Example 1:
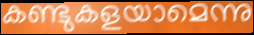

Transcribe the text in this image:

കണ്ടുകളയാമെന്നു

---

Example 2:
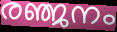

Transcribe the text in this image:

രഞ്ജനം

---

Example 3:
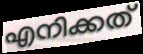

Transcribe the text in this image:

എനിക്കത്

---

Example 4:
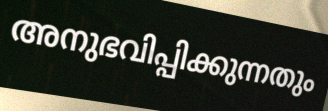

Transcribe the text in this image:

അനുഭവിപ്പിക്കുന്നതും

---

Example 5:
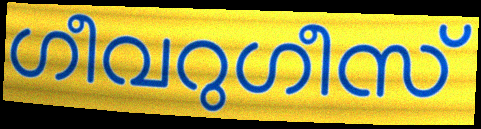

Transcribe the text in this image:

ഗീവറുഗീസ്